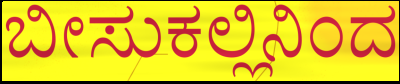
ಬೀಸುಕಲ್ಲಿನಿಂದ